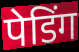
पेडिंग